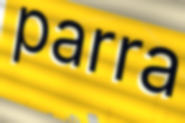
parra